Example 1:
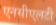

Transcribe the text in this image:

एनसीएलटी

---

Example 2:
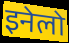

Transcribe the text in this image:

इनेलो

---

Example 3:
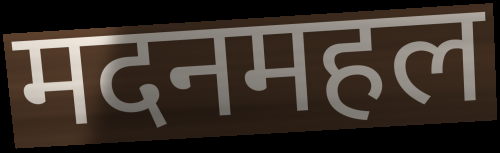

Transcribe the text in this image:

मदनमहल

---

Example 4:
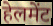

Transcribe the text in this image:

हेलमेंट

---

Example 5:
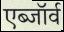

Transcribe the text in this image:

एब्जॉर्व